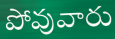
పోవువారు